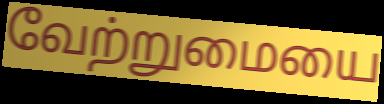
வேற்றுமையை